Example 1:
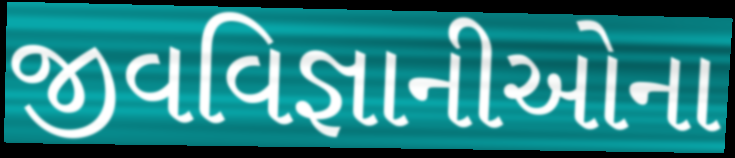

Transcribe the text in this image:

જીવવિજ્ઞાનીઓના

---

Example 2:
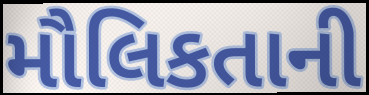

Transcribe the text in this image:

મૌલિકતાની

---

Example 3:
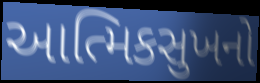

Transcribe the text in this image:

આત્મિકસુખનો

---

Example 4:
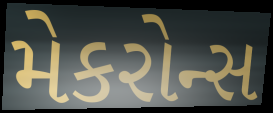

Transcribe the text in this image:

મેકરોન્સ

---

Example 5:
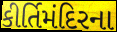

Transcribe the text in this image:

કીર્તિમંદિરના